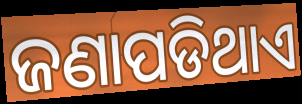
ଜଣାପଡିଥାଏ